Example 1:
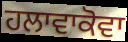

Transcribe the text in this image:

ਹਲਾਵਾਕੋਵਾ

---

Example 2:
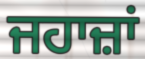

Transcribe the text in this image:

ਜਹਾਜ਼ਾਂ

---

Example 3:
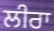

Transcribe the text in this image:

ਲੀਰਾ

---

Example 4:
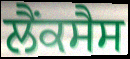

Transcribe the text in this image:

ਲੈਂਕਸੈਸ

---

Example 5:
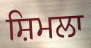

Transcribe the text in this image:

ਸ਼ਿਮਲਾ